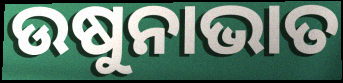
ଉଷୁନାଭାତ